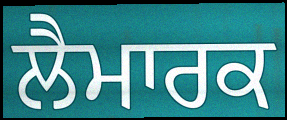
ਲੈਮਾਰਕ